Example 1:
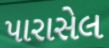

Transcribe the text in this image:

પારાસેલ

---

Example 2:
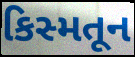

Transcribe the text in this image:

કિસ્મતૂન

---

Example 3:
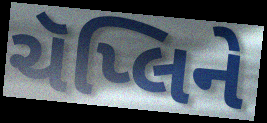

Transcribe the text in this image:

ચૅપ્લિને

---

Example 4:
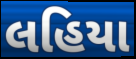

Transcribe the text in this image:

લહિયા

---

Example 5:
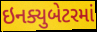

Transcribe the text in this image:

ઇનક્યુબેટરમાં